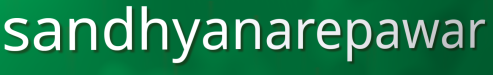
sandhyanarepawar